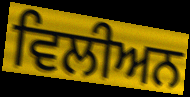
ਵਿਲੀਅਨ